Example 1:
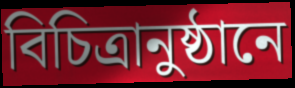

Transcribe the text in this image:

বিচিত্রানুষ্ঠানে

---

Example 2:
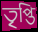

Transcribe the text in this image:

তৃপ্তি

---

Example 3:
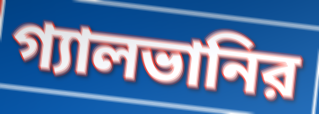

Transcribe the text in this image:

গ্যালভানির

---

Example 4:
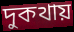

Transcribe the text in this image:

দুকথায়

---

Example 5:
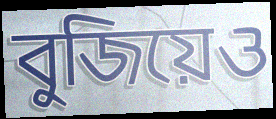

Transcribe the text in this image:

বুজিয়েও